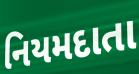
નિયમદાતા